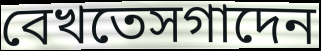
বেখতেসগাদেন